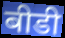
बीडी